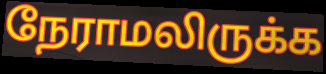
நேராமலிருக்க